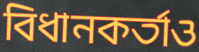
বিধানকর্তাও